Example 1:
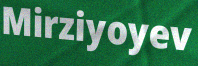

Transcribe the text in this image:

Mirziyoyev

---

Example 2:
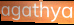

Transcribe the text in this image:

agathya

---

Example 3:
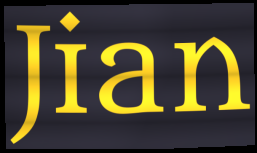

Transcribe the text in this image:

Jian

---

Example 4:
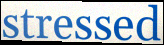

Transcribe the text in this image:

stressed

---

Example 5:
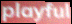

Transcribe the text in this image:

playful